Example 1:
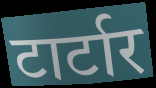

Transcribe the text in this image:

टार्टार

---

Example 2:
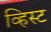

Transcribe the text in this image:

व्हिस्ट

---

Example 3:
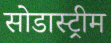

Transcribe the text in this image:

सोडास्ट्रीम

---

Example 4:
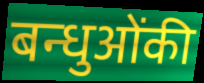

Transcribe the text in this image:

बन्धुओंकी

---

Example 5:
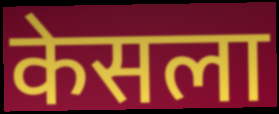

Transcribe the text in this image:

केसला